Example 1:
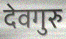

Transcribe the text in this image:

देवगुरु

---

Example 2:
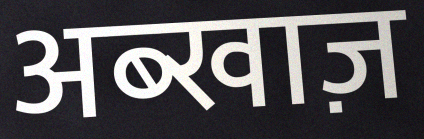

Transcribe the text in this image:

अब्खाज़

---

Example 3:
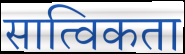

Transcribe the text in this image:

सात्विकता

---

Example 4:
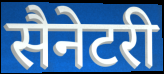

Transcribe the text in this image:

सैनेटरी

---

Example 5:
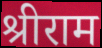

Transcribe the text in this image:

श्रीराम